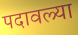
पदावल्या